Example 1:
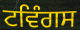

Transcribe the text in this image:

ਟਵਿੰਗਸ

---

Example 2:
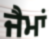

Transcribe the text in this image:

ਜੈਮਾਂ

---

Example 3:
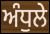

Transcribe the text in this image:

ਅੰਧੁਲੇ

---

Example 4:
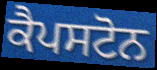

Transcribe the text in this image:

ਕੈਪਸਟੋਨ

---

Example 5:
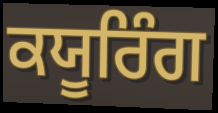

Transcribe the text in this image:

ਕਯੂਰਿੰਗ